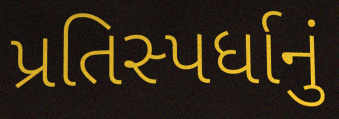
પ્રતિસ્પર્ધાનું